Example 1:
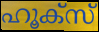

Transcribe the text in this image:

ഹൂക്സ്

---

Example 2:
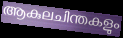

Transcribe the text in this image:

ആകുലചിന്തകളും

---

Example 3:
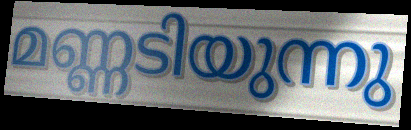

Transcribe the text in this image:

മണ്ണടിയുന്നു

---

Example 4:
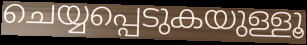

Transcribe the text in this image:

ചെയ്യപ്പെടുകയുള്ളൂ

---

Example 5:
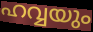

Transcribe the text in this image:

ഹവ്വയും